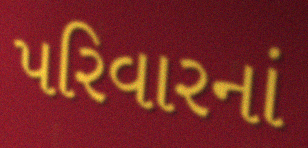
પરિવારનાં